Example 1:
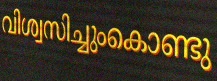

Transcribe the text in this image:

വിശ്വസിച്ചുംകൊണ്ടു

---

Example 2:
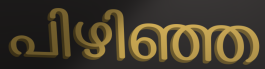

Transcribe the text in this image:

പിഴിഞ്ഞ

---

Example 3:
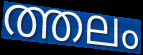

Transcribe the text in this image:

ത്തലം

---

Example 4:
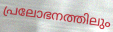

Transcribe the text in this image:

പ്രലോഭനത്തിലും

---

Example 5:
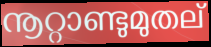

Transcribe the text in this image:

നൂറ്റാണ്ടുമുതല്